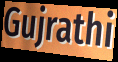
Gujrathi